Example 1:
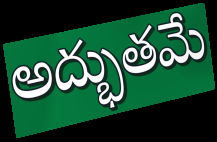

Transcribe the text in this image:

అద్భుతమే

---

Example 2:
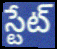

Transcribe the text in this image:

స్టేట్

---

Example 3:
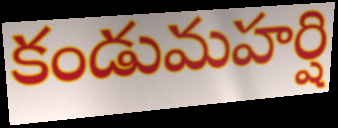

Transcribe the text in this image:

కండుమహర్షి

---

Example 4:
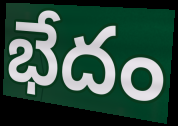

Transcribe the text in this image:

భేదం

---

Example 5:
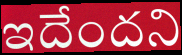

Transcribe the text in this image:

ఇదేందని